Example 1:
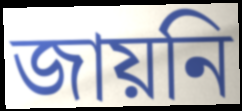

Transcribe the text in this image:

জায়নি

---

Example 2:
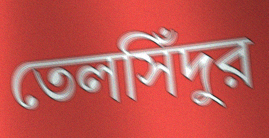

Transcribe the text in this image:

তেলসিঁদুর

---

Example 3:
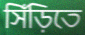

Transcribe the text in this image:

সিঁড়িতে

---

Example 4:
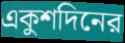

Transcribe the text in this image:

একুশদিনের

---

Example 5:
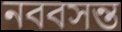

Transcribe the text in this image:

নববসন্ত